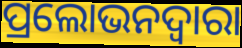
ପ୍ରଲୋଭନଦ୍ୱାରା